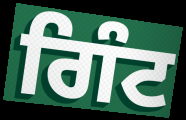
ਗਿੰਟ